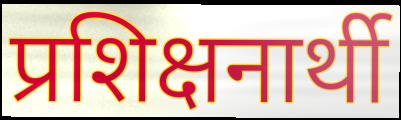
प्रशिक्षनार्थी